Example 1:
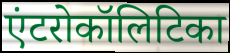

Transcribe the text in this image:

एंटरोकॉलिटिका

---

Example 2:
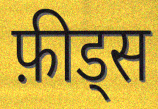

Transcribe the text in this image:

फ़ीड्स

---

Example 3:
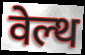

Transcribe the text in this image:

वेल्‍थ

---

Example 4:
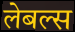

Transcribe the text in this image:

लेबल्स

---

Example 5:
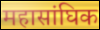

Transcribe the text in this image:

महासांघिक